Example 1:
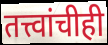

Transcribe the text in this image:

तत्त्वांचीही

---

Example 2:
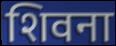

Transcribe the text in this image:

शिवना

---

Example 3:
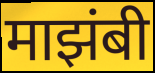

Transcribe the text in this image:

माझंबी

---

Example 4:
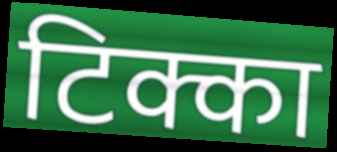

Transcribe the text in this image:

टिक्का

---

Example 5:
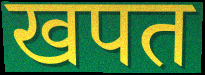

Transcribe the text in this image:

खपत